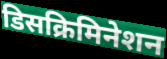
डिसक्रिमिनेशन